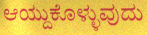
ಆಯ್ದುಕೊಳ್ಳುವುದು